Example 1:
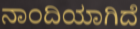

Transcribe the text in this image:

ನಾಂದಿಯಾಗಿದೆ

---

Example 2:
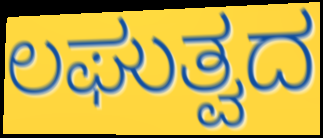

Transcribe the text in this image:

ಲಘುತ್ವದ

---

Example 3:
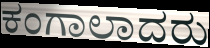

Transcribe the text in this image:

ಕಂಗಾಲಾದರು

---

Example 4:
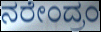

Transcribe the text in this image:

ನರೇಂದ್ರಂ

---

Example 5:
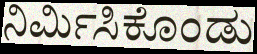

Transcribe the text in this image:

ನಿರ್ಮಿಸಿಕೊಂಡು